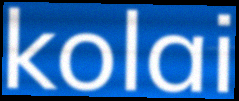
kolai